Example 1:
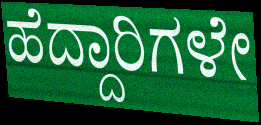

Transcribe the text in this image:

ಹೆದ್ದಾರಿಗಳೇ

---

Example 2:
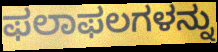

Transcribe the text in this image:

ಫಲಾಫಲಗಳನ್ನು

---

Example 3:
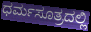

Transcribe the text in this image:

ಧರ್ಮಸೂತ್ರದಲ್ಲಿ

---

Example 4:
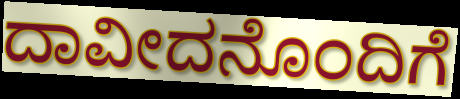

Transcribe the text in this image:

ದಾವೀದನೊಂದಿಗೆ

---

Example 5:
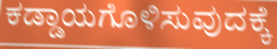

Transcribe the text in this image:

ಕಡ್ಡಾಯಗೊಳಿಸುವುದಕ್ಕೆ